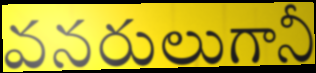
వనరులుగానీ